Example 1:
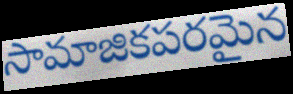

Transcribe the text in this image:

సామాజికపరమైన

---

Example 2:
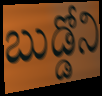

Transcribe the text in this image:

బుడ్డోని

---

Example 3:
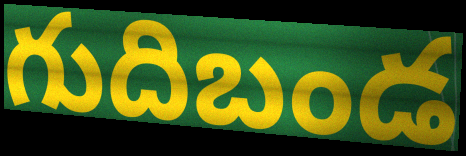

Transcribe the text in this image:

గుదిబండ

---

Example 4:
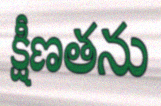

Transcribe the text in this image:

క్షీణతను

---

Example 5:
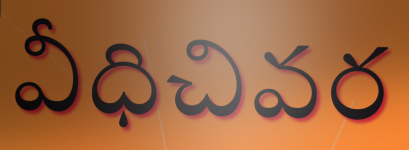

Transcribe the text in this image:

వీధిచివర